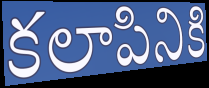
కలాపినికి